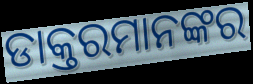
ଡାକ୍ତରମାନଙ୍କର